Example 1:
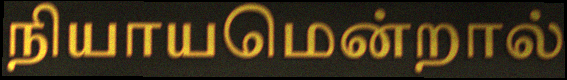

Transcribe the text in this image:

நியாயமென்றால்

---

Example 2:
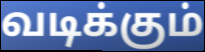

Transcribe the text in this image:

வடிக்கும்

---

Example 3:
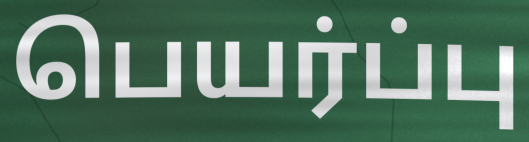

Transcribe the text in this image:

பெயர்ப்பு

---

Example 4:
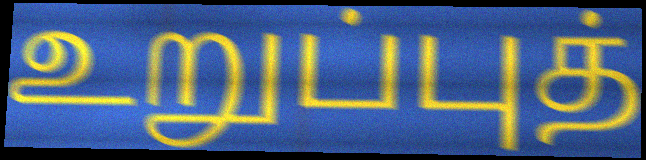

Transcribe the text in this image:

உறுப்புத்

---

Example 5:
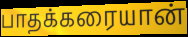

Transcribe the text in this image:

பாதக்கரையான்